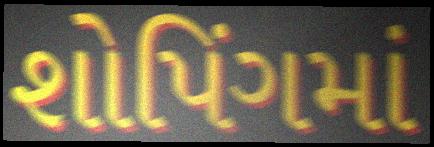
શોપિંગમાં